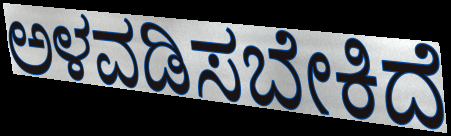
ಅಳವಡಿಸಬೇಕಿದೆ